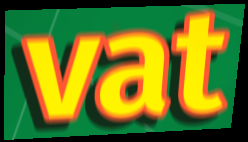
vat